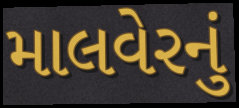
માલવેરનું